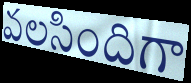
వలసిందిగా